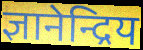
ज्ञानेन्द्रिय